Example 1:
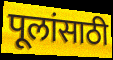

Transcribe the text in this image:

पूलांसाठी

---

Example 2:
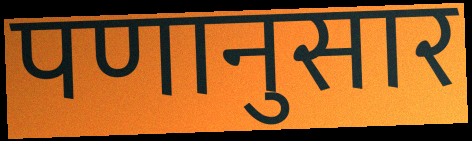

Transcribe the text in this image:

पणानुसार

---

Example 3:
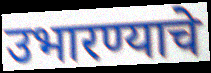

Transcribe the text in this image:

उभारण्याचे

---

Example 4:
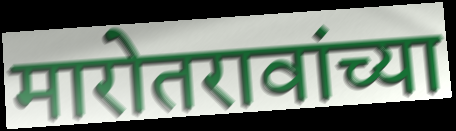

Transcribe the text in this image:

मारोतरावांच्या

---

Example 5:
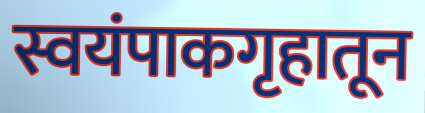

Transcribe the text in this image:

स्वयंपाकगृहातून